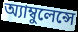
অ্যাম্বুলেন্সে